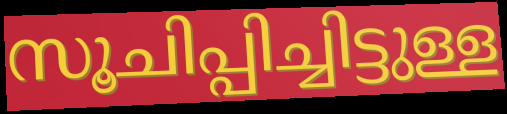
സൂചിപ്പിച്ചിട്ടുള്ള